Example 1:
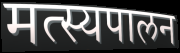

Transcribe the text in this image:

मत्स्यपालन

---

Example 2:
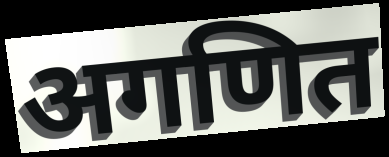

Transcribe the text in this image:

अगणित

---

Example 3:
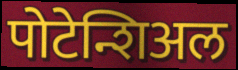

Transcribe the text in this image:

पोटेन्शिअल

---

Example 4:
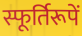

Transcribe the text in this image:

स्फूर्तिरूपें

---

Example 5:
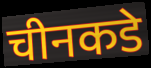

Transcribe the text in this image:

चीनकडे